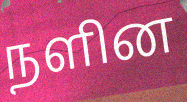
நளின